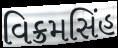
વિક્રમસિંહ